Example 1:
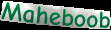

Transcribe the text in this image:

Maheboob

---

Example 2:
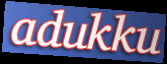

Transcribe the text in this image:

adukku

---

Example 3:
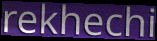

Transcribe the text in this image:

rekhechi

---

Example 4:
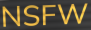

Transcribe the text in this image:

NSFW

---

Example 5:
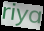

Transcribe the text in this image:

riya